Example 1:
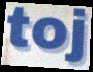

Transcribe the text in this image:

toj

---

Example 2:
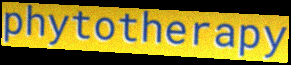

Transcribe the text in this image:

phytotherapy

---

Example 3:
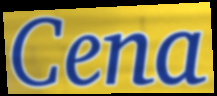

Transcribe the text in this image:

Cena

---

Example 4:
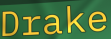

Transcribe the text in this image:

Drake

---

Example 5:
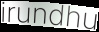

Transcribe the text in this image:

irundhu